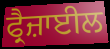
ਫ੍ਰੈਜ਼ਾਈਲ